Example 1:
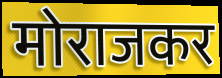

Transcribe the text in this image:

मोराजकर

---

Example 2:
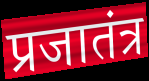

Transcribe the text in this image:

प्रजातंत्र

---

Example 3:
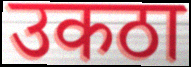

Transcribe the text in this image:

उकठा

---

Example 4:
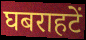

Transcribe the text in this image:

घबराहटें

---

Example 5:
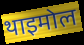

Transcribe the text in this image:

थाइमोल